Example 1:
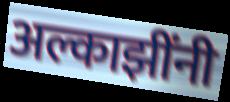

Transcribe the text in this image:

अल्काझींनी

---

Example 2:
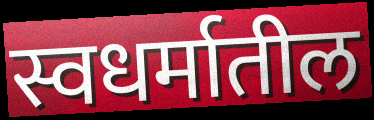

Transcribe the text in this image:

स्वधर्मातील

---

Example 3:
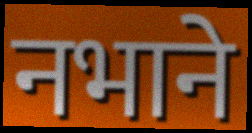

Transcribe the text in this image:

नभाने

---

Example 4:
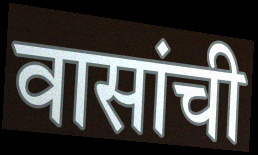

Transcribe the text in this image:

वासांची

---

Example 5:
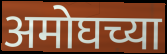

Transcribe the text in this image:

अमोघच्या